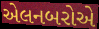
એલનબરોએ